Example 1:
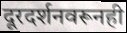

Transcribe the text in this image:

दूरदर्शनवरूनही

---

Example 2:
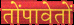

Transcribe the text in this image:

तोंपावेतों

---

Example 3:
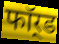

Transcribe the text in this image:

फॉर्ड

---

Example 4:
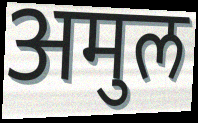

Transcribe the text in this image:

अमुल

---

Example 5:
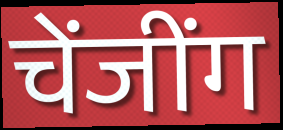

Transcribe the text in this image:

चेंजींग